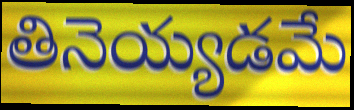
తినెయ్యడమే